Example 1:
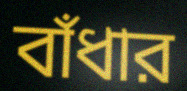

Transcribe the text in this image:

বাঁধার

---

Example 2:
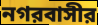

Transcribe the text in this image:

নগরবাসীর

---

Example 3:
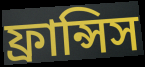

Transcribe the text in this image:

ফ্রান্সিস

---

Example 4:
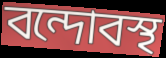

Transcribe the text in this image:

বন্দোবস্থ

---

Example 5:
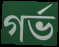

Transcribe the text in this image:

গর্ভ